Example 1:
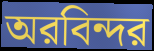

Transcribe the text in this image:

অরবিন্দর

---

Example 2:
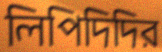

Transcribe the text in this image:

লিপিদিদির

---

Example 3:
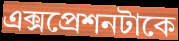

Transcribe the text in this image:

এক্সপ্রেশনটাকে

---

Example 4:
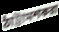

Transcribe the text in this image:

ঠাট্টামশকরা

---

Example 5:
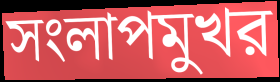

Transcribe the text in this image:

সংলাপমুখর